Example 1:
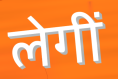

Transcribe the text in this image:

लेगीं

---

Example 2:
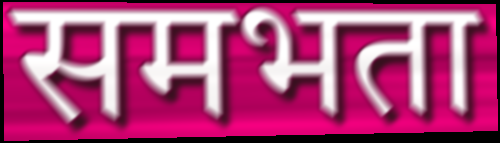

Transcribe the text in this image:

समभता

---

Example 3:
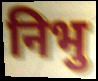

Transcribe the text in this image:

निभु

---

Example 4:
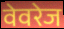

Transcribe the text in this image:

वेवरेज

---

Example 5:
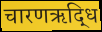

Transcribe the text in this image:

चारणऋद्धि